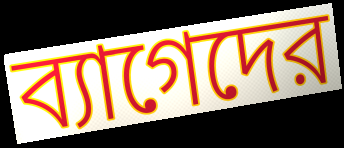
ব্যাগেদের